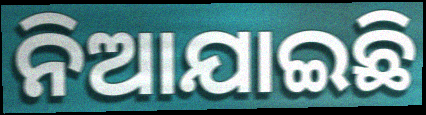
ନିଆଯାଇଛି